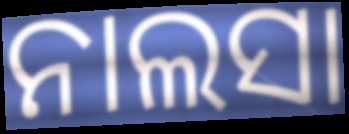
ନାଲସା